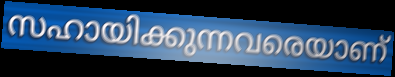
സഹായിക്കുന്നവരെയാണ്